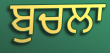
ਬੁਚਲਾ